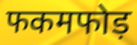
फकमफोड़